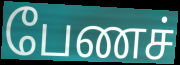
பேணச்